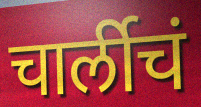
चार्लीचं